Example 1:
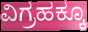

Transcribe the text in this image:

ವಿಗ್ರಹಕ್ಕೂ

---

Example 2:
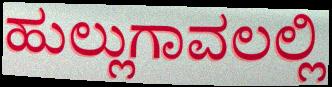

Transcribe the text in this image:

ಹುಲ್ಲುಗಾವಲಲ್ಲಿ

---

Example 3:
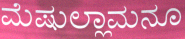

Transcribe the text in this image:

ಮೆಷುಲ್ಲಾಮನೂ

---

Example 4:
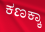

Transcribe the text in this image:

ಕಣಕ್ಕಾ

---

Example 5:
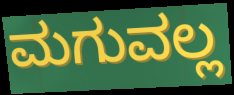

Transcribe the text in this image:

ಮಗುವಲ್ಲ